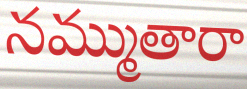
నమ్ముతారా